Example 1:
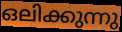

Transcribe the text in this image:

ഒലിക്കുന്നു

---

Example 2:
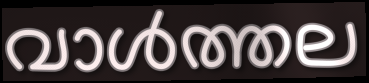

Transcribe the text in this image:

വാൾത്തല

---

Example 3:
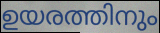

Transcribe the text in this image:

ഉയരത്തിനും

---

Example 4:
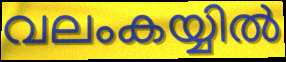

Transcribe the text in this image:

വലംകയ്യിൽ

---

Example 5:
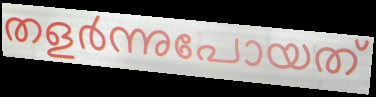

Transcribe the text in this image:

തളർന്നുപോയത്